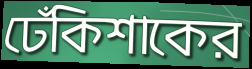
ঢেঁকিশাকের